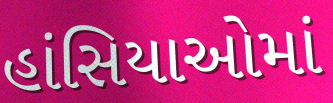
હાંસિયાઓમાં